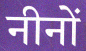
नीनों